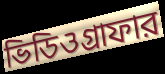
ভিডিওগ্রাফার